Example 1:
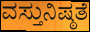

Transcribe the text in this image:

ವಸ್ತುನಿಷ್ಠತೆ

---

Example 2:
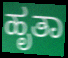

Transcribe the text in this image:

ಹೃತಾ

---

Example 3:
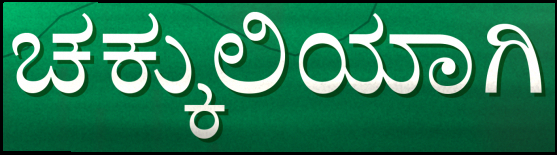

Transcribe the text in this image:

ಚಕ್ಕುಲಿಯಾಗಿ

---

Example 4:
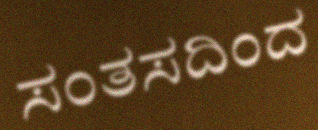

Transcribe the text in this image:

ಸಂತಸದಿಂದ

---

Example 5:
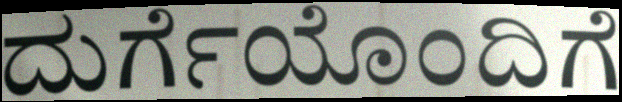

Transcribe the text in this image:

ದುರ್ಗೆಯೊಂದಿಗೆ